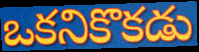
ఒకనికొకడు